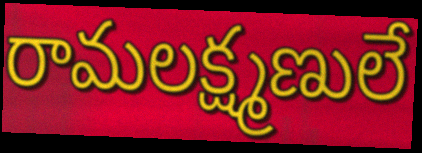
రామలక్ష్మణులే